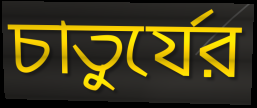
চাতুর্যের